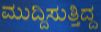
ಮುದ್ದಿಸುತ್ತಿದ್ದ